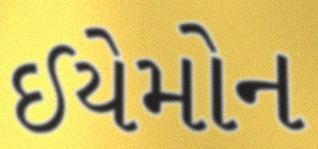
ઈયેમોન